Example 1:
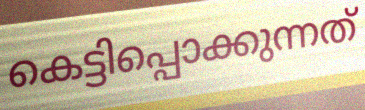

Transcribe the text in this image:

കെട്ടിപ്പൊക്കുന്നത്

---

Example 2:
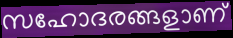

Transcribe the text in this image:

സഹോദരങ്ങളാണ്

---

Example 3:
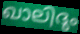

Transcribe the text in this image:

ഖാലിദും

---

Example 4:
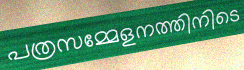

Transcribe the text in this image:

പത്രസമ്മേളനത്തിനിടെ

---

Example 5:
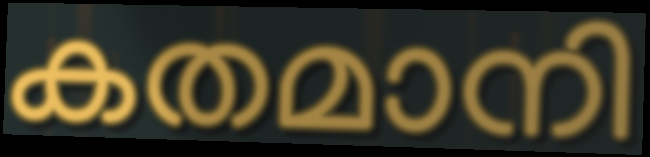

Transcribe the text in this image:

കതമാനി